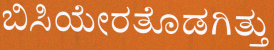
ಬಿಸಿಯೇರತೊಡಗಿತ್ತು